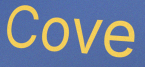
Cove